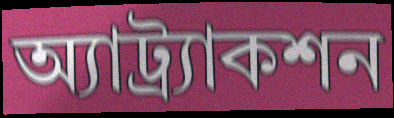
অ্যাট্র্যাকশন